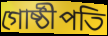
গোষ্ঠীপতি